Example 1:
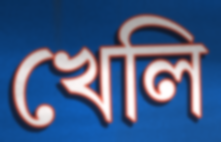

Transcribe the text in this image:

খেলি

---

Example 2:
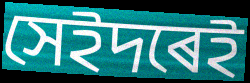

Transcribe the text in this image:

সেইদৰেই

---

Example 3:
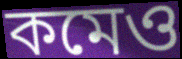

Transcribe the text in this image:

কমেও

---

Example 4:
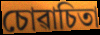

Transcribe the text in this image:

চোৱাচিতা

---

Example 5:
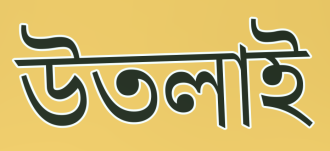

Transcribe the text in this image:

উতলাই